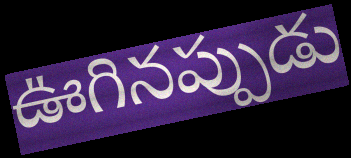
ఊగినప్పుడు